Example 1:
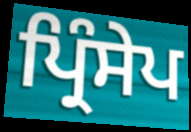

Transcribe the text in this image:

ਪ੍ਰਿੰਸੇਪ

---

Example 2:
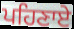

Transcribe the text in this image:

ਪਹਿਣਾਏ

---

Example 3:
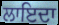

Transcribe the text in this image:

ਲਾਇਦਾ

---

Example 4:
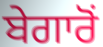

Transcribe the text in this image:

ਬੇਗਾਰੋਂ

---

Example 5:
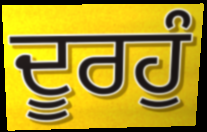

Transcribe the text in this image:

ਦੂਰਹੁੰ